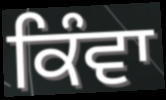
ਕਿੰਵਾ